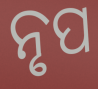
ନୃପ